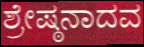
ಶ್ರೇಷ್ಠನಾದವ